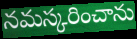
నమస్కరించాను